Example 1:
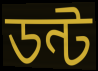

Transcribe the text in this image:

ডন্ট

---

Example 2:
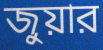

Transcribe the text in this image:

জুয়ার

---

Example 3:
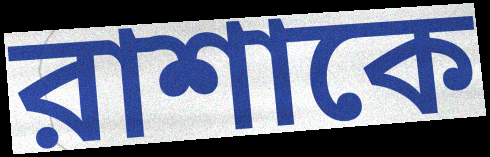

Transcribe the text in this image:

রাশাকে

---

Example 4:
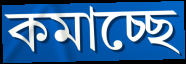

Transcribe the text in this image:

কমাচ্ছে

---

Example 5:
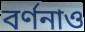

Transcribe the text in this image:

বর্ণনাও